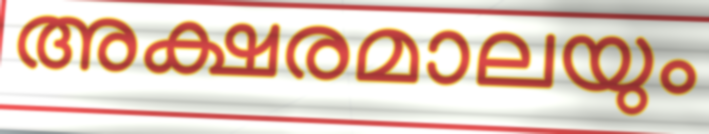
അക്ഷരമാലയും